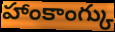
హాంకాంగ్కు